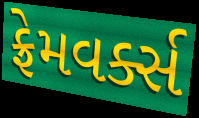
ફ્રેમવર્ક્સ